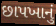
છાપખાનું